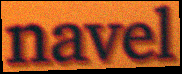
navel